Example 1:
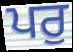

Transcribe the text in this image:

ਪਰੁ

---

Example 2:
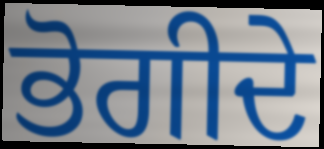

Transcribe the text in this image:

ਭੋਗੀਦੇ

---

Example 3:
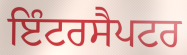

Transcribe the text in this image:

ਇੰਟਰਸੈਪਟਰ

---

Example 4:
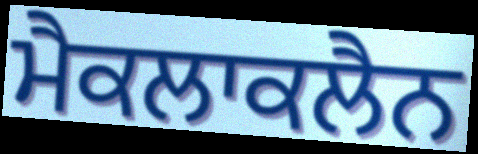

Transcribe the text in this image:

ਮੈਕਲਾਕਲੈਨ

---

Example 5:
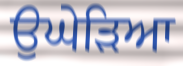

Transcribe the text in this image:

ਉਘੇੜਿਆ